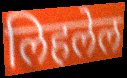
लिहलेल